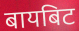
बायबिट